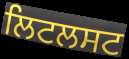
ਲਿਟਲਸਟ